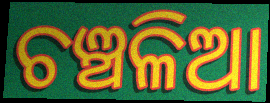
ଚଞ୍ଚଳିଆ